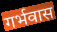
गर्भवास